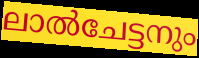
ലാൽചേട്ടനും